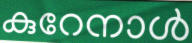
കുറേനാൾ